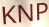
KNP